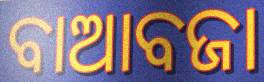
ବାଆବଜା